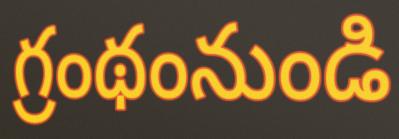
గ్రంథంనుండి